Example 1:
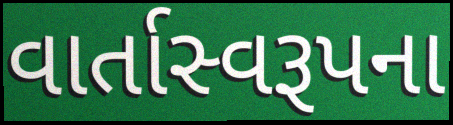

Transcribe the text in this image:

વાર્તાસ્વરૂપના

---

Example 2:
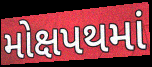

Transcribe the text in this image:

મોક્ષપથમાં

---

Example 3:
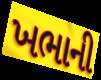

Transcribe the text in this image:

ખભાની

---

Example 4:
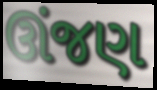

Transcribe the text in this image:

ઊંજણ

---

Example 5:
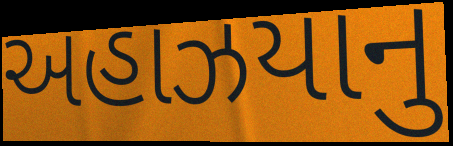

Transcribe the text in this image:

અહાઝયાનુ